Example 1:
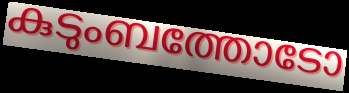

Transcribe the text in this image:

കുടുംബത്തോടോ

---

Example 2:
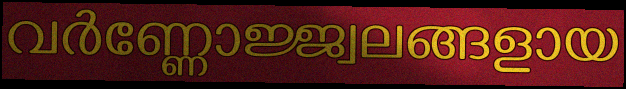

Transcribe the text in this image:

വർണ്ണോജ്ജ്വലങ്ങളായ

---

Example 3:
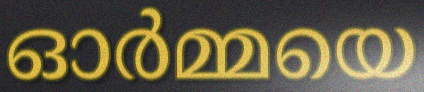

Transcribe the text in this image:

ഓർമ്മയെ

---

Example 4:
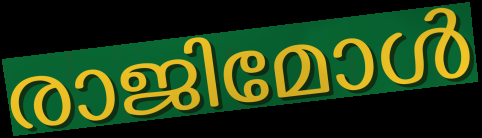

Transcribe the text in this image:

രാജിമോൾ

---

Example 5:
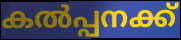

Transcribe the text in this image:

കൽപ്പനക്ക്